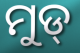
ମୁଡ୍